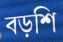
বড়শি